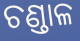
ଚଣ୍ଡାଳ